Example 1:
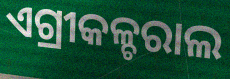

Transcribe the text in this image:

ଏଗ୍ରୀକଳ୍ଚରାଲ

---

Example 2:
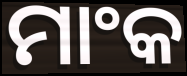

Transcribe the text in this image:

ମାଂକ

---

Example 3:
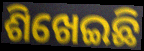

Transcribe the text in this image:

ଶିଖେଇଛି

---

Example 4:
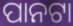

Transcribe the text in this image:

ପାନଟା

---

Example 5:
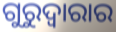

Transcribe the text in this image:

ଗୁରୁଦ୍ୱାରାର